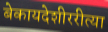
बेकायदेशीररीत्या